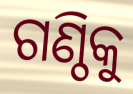
ଗଣ୍ଠିକୁ